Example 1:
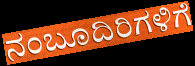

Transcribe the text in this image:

ನಂಬೂದಿರಿಗಳಿಗೆ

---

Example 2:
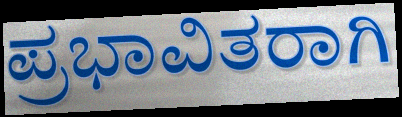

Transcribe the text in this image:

ಪ್ರಭಾವಿತರಾಗಿ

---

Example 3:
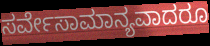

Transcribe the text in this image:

ಸರ್ವೇಸಾಮಾನ್ಯವಾದರೂ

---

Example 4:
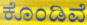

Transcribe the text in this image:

ಕೊಂಡಿವೆ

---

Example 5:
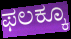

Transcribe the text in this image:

ಫಲಕ್ಕೂ